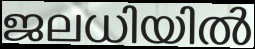
ജലധിയിൽ